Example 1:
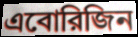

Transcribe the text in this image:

এবোরিজিন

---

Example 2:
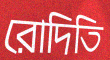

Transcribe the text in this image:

রোদিতি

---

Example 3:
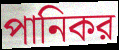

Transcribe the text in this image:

পানিকর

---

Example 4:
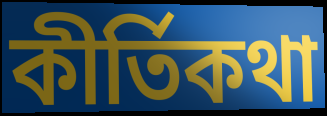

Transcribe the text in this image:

কীর্তিকথা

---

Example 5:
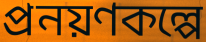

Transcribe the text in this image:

প্রনয়ণকল্পে